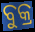
ବୁକ୍ର